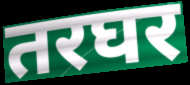
तरघर